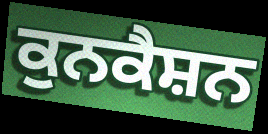
ਕੁਨਕੈਸ਼ਨ